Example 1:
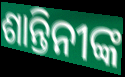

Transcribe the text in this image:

ଶାନ୍ତିନୀଙ୍କ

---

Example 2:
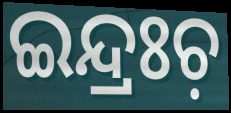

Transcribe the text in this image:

ଇନ୍ଦ୍ରଃଚ଼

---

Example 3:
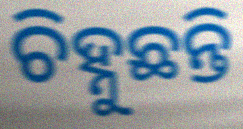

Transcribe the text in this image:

ଚିହ୍ନୁଛନ୍ତି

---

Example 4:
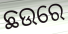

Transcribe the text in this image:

ଛଉରେ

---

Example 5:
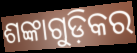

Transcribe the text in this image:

ଶଙ୍କାଗୁଡ଼ିକର